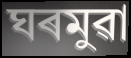
ঘৰমুৱা